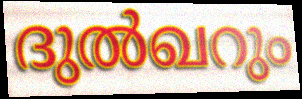
ദുൽഖറും